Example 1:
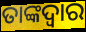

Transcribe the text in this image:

ତାଙ୍କଦ୍ୱାର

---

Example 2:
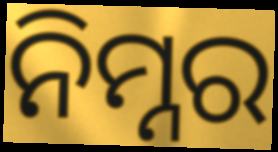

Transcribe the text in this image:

ନିମ୍ନର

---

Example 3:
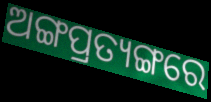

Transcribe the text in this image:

ଅଙ୍ଗପ୍ରତ୍ୟଙ୍ଗରେ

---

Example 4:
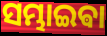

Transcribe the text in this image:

ସମ୍ଭାଇଵା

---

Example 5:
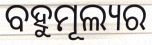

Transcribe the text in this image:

ବହୁମୂଲ୍ୟର